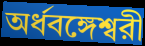
অর্ধবঙ্গেশ্বরী